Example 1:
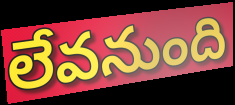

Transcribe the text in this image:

లేవనుంది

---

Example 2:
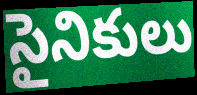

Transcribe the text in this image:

సైనికులు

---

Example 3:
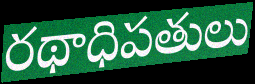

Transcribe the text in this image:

రథాధిపతులు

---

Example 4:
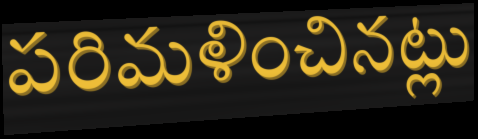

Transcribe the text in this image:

పరిమళించినట్లు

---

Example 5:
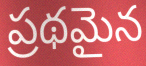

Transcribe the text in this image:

ప్రథమైన